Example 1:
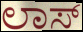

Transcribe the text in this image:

ಲಾಸ್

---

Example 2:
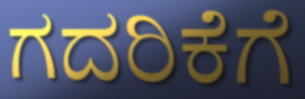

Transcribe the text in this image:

ಗದರಿಕೆಗೆ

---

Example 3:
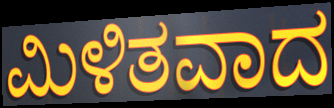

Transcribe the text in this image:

ಮಿಳಿತವಾದ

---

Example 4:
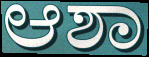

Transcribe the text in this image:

ಆಶಾ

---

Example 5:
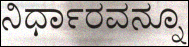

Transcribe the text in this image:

ನಿರ್ಧಾರವನ್ನೂ